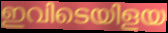
ഇവിടെയിളയ